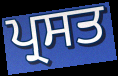
ਪ੍ਰਸਤ